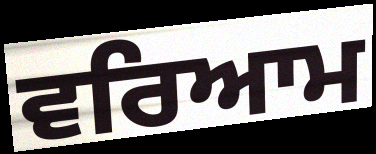
ਵਰਿਆਮ